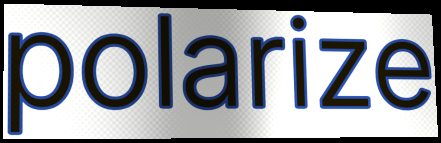
polarize